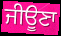
ਜੀਊਣਾ